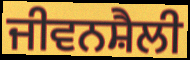
ਜੀਵਨਸ਼ੈਲੀ